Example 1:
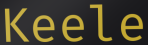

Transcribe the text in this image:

Keele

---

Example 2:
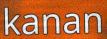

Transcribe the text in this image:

kanan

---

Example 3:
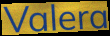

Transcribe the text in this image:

Valera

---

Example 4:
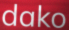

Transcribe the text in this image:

dako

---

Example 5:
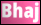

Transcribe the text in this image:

Bhaj